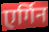
एर्गिन